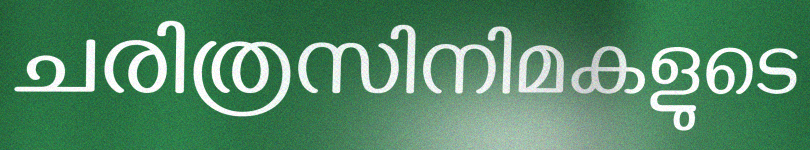
ചരിത്രസിനിമകളുടെ